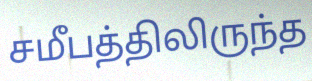
சமீபத்திலிருந்த